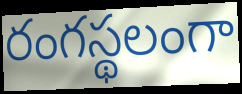
రంగస్థలంగా